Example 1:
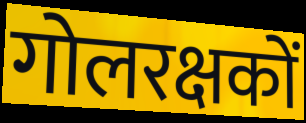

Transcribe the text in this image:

गोलरक्षकों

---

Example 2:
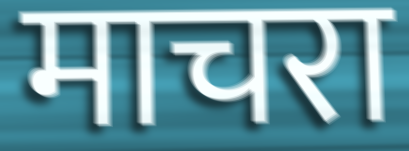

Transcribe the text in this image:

माचरा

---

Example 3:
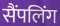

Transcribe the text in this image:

सैंपलिंग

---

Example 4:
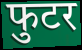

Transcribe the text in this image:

फुटर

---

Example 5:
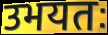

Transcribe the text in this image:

उभयतः